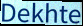
Dekhte